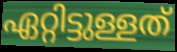
ഏറ്റിട്ടുള്ളത്